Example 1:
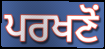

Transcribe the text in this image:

ਪਰਖਣੋਂ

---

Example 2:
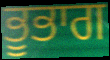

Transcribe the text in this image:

ਭੂਭਾਗ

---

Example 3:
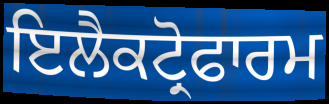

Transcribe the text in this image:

ਇਲੈਕਟ੍ਰੋਫਾਰਮ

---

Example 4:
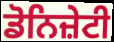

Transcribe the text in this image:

ਡੋਨਿਜ਼ੇਟੀ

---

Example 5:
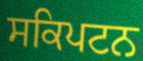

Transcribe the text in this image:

ਸਕਿਪਟਨ